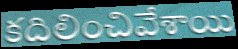
కదిలించివేశాయి